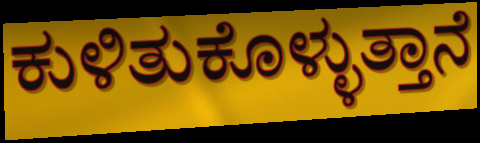
ಕುಳಿತುಕೊಳ್ಳುತ್ತಾನೆ